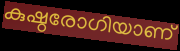
കുഷ്ഠരോഗിയാണ്